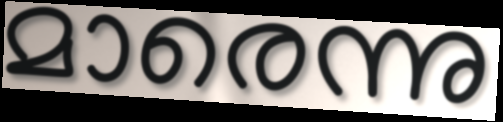
മാരെന്നു